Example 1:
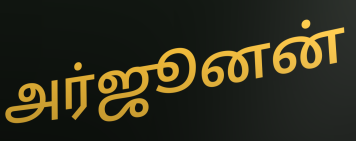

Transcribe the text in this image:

அர்ஜூனன்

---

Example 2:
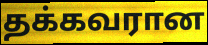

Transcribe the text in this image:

தக்கவரான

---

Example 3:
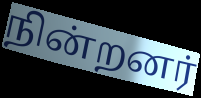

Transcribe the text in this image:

நின்றனர்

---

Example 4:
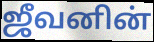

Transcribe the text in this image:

ஜீவனின்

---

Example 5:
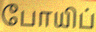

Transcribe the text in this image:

போயிப்